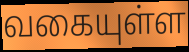
வகையுள்ள